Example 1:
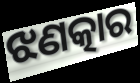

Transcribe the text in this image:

ଝଣତ୍କାର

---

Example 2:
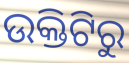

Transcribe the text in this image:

ଉକ୍ତିଟିରୁ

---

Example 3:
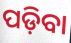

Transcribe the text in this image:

ପଡ଼ିବା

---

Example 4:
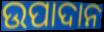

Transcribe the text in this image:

ଉପାଦାନ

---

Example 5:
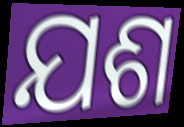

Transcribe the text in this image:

ଯଶ